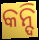
କନ୍ଦି